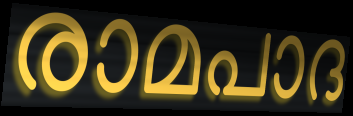
രാമപാദ